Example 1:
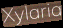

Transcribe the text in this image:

Xylaria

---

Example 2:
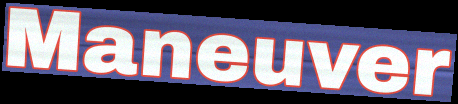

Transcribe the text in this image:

Maneuver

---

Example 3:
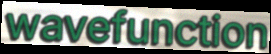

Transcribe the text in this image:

wavefunction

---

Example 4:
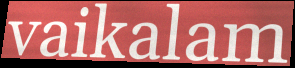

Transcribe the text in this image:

vaikalam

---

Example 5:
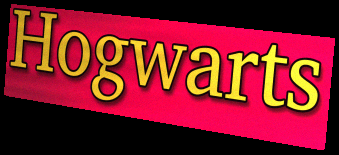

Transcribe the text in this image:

Hogwarts